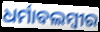
ଧର୍ମାବଲମ୍ବୀର